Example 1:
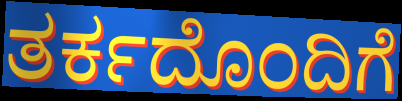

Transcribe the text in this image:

ತರ್ಕದೊಂದಿಗೆ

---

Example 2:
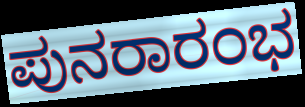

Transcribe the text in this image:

ಪುನರಾರಂಭ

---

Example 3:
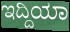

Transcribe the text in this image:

ಇದ್ದಿಯಾ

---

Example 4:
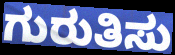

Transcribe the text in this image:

ಗುರುತಿಸು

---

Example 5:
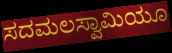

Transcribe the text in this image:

ಸದಮಲಸ್ವಾಮಿಯೂ